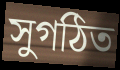
সুগঠিত